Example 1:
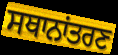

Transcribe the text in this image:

ਸਥਾਨਾਂਤਰਣ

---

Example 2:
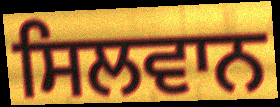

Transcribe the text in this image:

ਸਿਲਵਾਨ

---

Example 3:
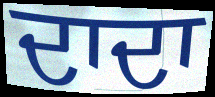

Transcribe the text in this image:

ਦਾਦਾ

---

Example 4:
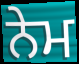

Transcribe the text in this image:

ਨੇਮ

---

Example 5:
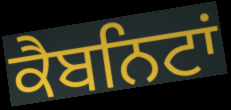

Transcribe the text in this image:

ਕੈਬਨਿਟਾਂ